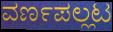
ವರ್ಣಪಲ್ಲಟ